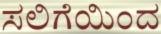
ಸಲಿಗೆಯಿಂದ